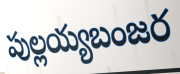
పుల్లయ్యబంజర